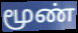
மூண்